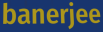
banerjee